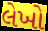
લેખો